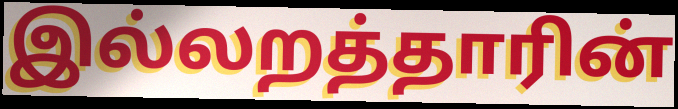
இல்லறத்தாரின்